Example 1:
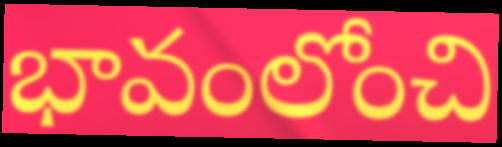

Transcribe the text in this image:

భావంలోంచి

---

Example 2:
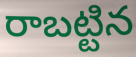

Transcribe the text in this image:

రాబట్టిన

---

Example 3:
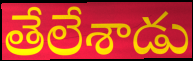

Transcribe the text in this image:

తేలేశాడు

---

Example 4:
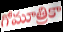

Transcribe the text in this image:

గోమూత్రికా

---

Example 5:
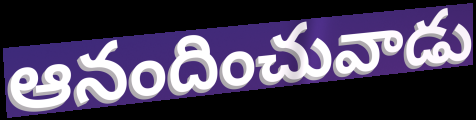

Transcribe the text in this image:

ఆనందించువాడు